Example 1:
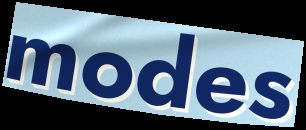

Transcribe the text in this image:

modes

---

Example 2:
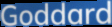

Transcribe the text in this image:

Goddard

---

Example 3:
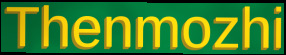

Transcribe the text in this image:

Thenmozhi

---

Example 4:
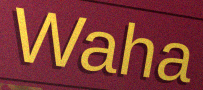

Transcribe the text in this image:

Waha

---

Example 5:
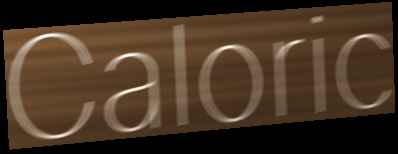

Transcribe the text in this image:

Caloric